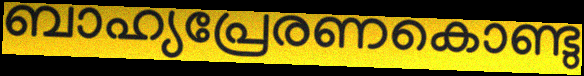
ബാഹ്യപ്രേരണകൊണ്ടു